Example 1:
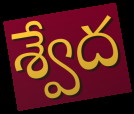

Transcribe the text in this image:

శ్వేద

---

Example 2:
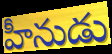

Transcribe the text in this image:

హీనుడు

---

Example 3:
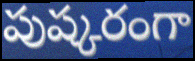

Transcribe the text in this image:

పుష్కరంగా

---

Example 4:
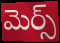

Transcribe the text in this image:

మెర్స్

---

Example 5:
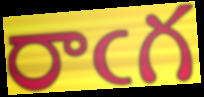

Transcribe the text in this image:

రాఁగ